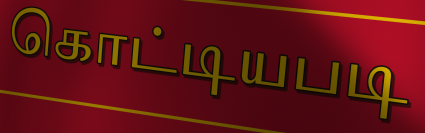
கொட்டியபடி